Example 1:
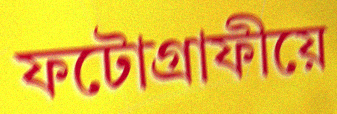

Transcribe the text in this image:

ফটোগ্ৰাফীয়ে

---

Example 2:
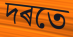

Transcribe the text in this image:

দৰতে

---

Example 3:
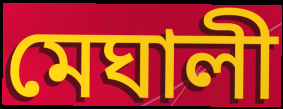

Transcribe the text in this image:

মেঘালী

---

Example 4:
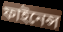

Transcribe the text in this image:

ফাইনেন্স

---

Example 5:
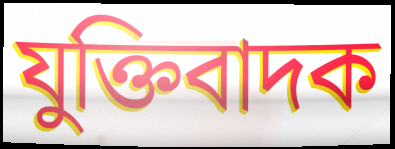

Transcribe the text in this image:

যুক্তিবাদক